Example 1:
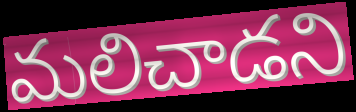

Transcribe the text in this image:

మలిచాడని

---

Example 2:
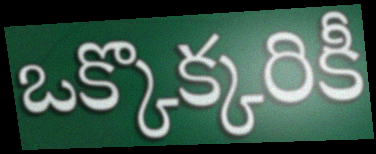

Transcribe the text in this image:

ఒక్కొక్కరికీ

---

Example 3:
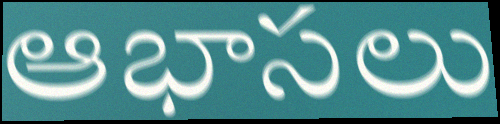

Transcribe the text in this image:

ఆభాసలు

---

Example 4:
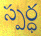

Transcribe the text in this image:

స్పర్ధ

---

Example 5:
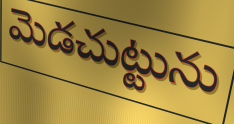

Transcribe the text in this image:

మెడచుట్టును